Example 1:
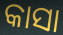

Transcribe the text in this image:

କାସା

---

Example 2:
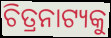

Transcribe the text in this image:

ଚିତ୍ରନାଟ୍ୟକୁ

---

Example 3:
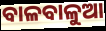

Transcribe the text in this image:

ବାଳବାଳୁଆ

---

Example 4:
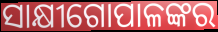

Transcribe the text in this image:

ସାକ୍ଷୀଗୋପାଳଙ୍କର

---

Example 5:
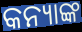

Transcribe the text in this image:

କନ୍ୟାଙ୍କ